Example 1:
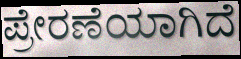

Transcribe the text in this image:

ಪ್ರೇರಣೆಯಾಗಿದೆ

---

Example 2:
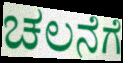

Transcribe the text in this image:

ಚಲನೆಗೆ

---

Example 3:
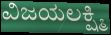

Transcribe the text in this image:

ವಿಜಯಲಕ್ಷ್ಮಿ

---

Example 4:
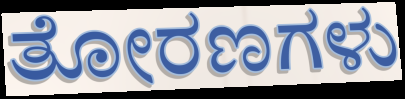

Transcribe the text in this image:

ತೋರಣಗಳು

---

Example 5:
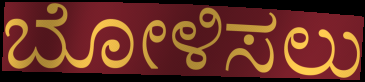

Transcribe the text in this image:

ಬೋಳಿಸಲು